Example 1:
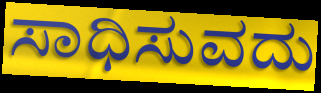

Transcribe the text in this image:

ಸಾಧಿಸುವದು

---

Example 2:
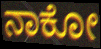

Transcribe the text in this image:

ನಾಕೋ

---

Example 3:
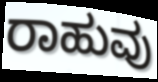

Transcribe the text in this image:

ರಾಹುವು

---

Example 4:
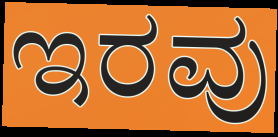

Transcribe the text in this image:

ಇರವು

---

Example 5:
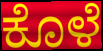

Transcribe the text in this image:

ಕೊಳೆ